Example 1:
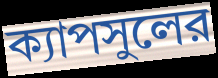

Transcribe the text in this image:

ক্যাপসুলের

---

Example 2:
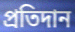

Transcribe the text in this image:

প্রতিদান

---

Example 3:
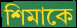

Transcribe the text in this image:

শিমাকে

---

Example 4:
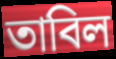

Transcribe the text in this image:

তাবিল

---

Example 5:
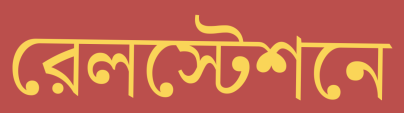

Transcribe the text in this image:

রেলস্টেশনে